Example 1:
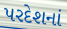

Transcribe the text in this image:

પરદેશનાં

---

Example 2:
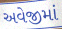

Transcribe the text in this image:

અવેજીમાં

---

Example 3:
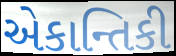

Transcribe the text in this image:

એકાન્તિકી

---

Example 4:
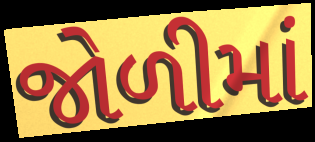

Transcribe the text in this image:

જોળીમાં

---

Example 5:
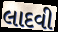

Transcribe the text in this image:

લાદવી